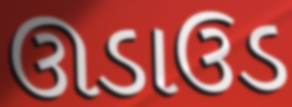
ઊડાઉડ